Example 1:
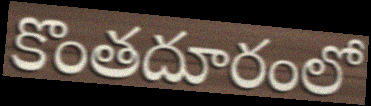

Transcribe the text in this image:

కొంతదూరంలో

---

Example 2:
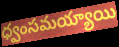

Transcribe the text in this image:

ధ్వంసమయ్యాయి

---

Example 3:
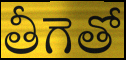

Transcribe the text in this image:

తీగెతో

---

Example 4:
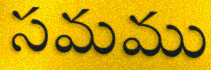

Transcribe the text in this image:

సమము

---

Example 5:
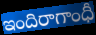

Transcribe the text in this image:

ఇందిరాగాంధీ